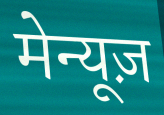
मेन्यूज़